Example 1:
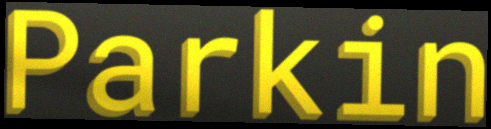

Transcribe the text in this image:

Parkin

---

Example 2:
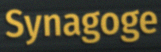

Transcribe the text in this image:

Synagoge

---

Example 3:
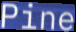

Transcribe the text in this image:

Pine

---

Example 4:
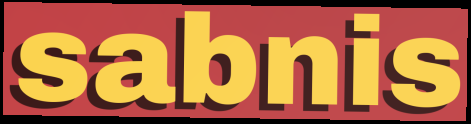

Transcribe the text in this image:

sabnis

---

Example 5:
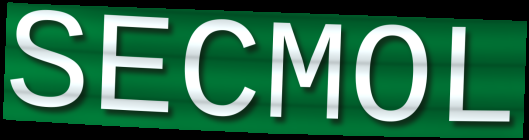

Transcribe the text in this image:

SECMOL